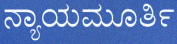
ನ್ಯಾಯಮೂರ್ತಿ